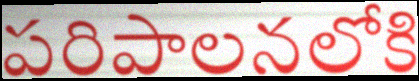
పరిపాలనలోకి